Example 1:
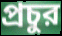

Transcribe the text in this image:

প্রচুর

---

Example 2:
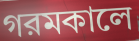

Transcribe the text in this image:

গরমকালে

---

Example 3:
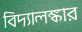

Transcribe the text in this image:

বিদ্যালঙ্কার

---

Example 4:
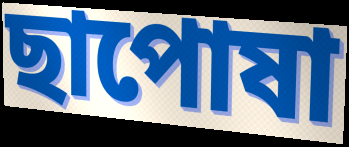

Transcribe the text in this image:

ছাপোষা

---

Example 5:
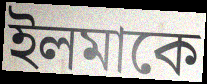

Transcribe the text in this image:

ইলমাকে